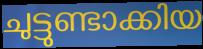
ചുട്ടുണ്ടാക്കിയ